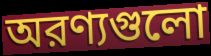
অরণ্যগুলো